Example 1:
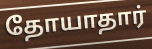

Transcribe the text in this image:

தோயாதார்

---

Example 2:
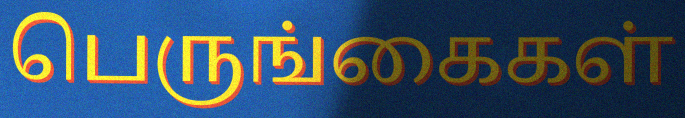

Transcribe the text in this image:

பெருங்கைகள்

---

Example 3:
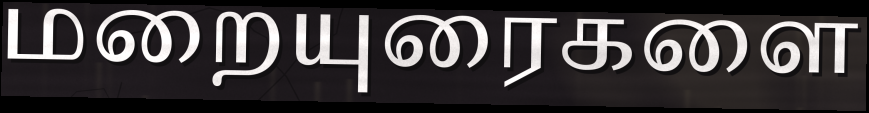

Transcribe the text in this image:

மறையுரைகளை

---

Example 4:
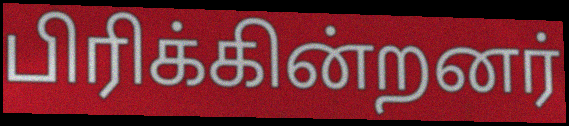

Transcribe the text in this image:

பிரிக்கின்றனர்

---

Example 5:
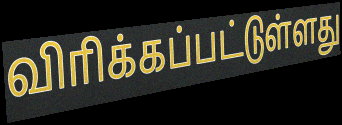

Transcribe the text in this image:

விரிக்கப்பட்டுள்ளது